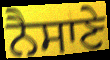
ਨੈਸਾਣੇ